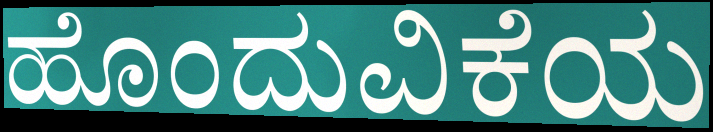
ಹೊಂದುವಿಕೆಯ